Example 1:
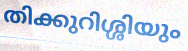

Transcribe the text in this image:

തിക്കുറിശ്ശിയും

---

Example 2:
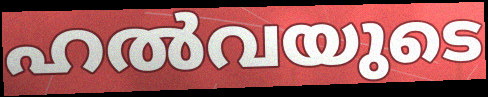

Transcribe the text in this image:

ഹൽവയുടെ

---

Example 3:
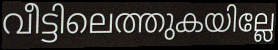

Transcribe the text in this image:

വീട്ടിലെത്തുകയില്ലേ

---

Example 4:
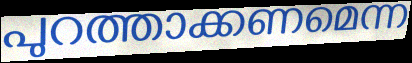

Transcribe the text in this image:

പുറത്താക്കണമെന്ന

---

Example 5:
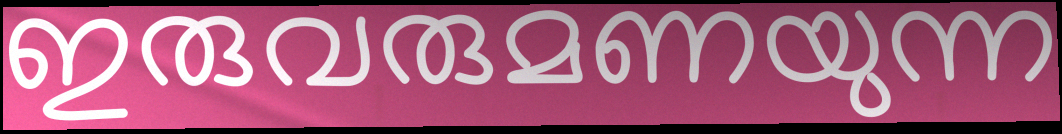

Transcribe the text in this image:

ഇരുവരുമണയുന്ന